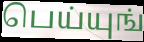
பெய்யுங்